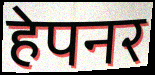
हेपनर